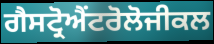
ਗੈਸਟ੍ਰੋਐਂਟਰੋਲੋਜੀਕਲ